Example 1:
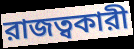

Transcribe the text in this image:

রাজত্বকারী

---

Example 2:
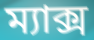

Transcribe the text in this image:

ম্যাক্স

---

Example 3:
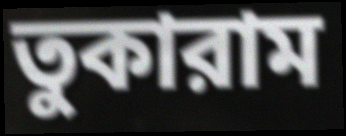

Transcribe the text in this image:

তুকারাম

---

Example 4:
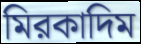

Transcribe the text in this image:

মিরকাদিম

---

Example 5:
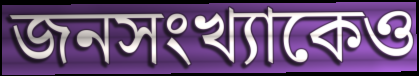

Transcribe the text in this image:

জনসংখ্যাকেও